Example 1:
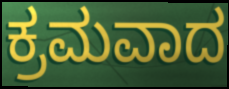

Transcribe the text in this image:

ಕ್ರಮವಾದ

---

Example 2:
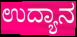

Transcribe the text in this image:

ಉದ್ಯಾನ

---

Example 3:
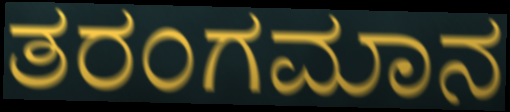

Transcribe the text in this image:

ತರಂಗಮಾನ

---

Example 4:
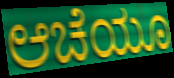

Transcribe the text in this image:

ಆಚೆಯೂ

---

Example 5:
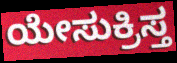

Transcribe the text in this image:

ಯೇಸುಕ್ರಿಸ್ತ